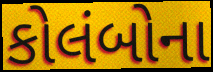
કોલંબોના